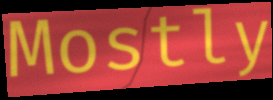
Mostly